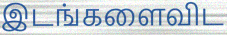
இடங்களைவிட